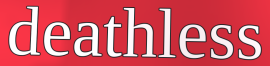
deathless